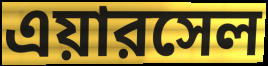
এয়ারসেল